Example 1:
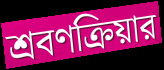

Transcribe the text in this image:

শ্রবণক্রিয়ার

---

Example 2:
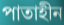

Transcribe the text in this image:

পাতাহীন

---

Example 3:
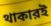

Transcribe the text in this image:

থাকারই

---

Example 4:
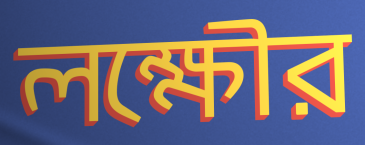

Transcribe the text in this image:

লক্ষৌর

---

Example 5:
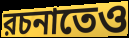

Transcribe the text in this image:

রচনাতেও